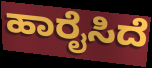
ಹಾರೈಸಿದೆ